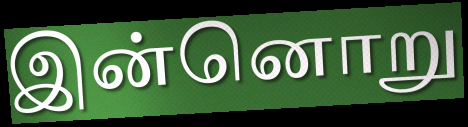
இன்னொறு